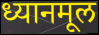
ध्यानमूल